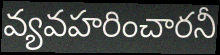
వ్యవహరించారనీ